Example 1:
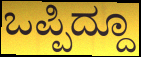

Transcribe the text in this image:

ಒಪ್ಪಿದ್ದೂ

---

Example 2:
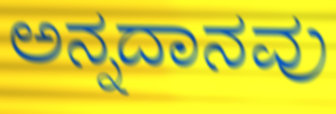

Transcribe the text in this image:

ಅನ್ನದಾನವು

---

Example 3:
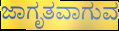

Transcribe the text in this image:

ಜಾಗೃತವಾಗುವ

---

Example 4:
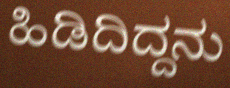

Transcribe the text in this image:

ಹಿಡಿದಿದ್ದನು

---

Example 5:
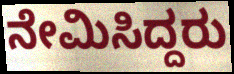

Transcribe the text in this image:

ನೇಮಿಸಿದ್ದರು